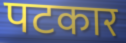
पटकार